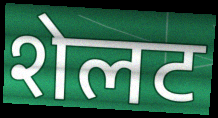
शेलट